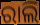
ରାଲି